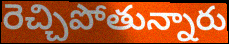
రెచ్చిపోతున్నారు